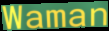
Waman